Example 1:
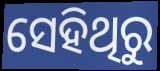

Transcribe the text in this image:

ସେହିଥିରୁ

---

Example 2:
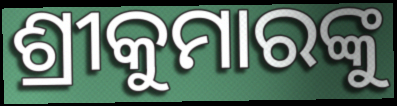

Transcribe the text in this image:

ଶ୍ରୀକୁମାରଙ୍କୁ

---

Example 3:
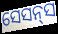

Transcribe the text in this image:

ସେସନ୍‌ସ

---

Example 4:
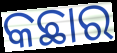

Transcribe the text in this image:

କଛାର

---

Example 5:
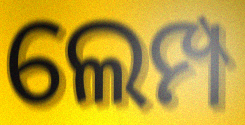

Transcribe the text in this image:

ଲେମ୍ପ